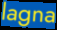
lagna